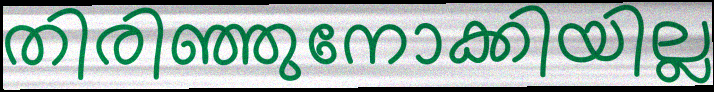
തിരിഞ്ഞുനോക്കിയില്ല